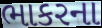
ભાકરના